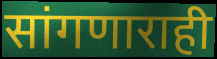
सांगणाराही